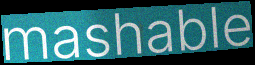
mashable